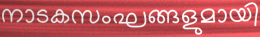
നാടകസംഘങ്ങളുമായി